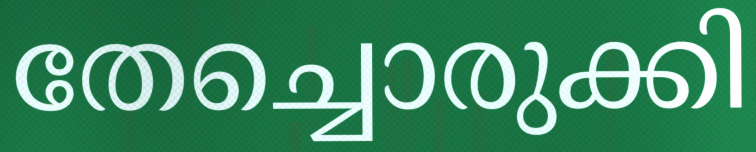
തേച്ചൊരുക്കി